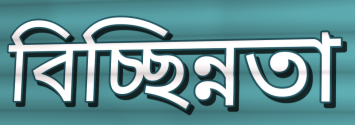
বিচ্ছিন্নতা